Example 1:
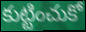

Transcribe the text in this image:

కుట్టించుకో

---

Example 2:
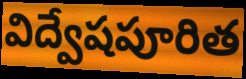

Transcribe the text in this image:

విద్వేషపూరిత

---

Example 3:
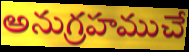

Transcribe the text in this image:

అనుగ్రహముచే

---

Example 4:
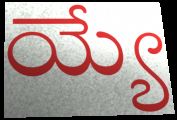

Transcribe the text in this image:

య్యే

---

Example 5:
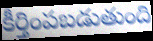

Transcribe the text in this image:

కీర్తింపబడుతుంది